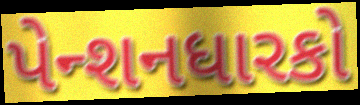
પેન્શનધારકો